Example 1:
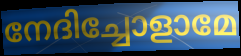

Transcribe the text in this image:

നേദിച്ചോളാമേ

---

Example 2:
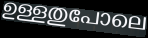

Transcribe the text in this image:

ഉള്ളതുപോലെ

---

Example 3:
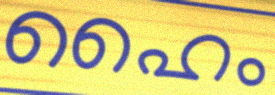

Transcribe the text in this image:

ഹൈം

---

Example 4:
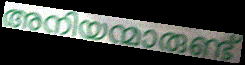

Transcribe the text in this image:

അനിയന്മാരുണ്ട്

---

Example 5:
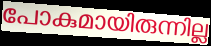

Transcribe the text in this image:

പോകുമായിരുന്നില്ല